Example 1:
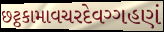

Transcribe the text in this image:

છટ્ઠકામાવચરદેવગ્ગહણં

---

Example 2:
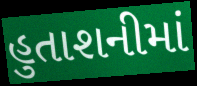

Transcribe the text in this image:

હુતાશનીમાં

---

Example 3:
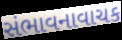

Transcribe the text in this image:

સંભાવનાવાચક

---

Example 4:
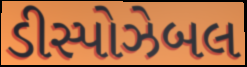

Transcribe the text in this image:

ડીસ્પોઝેબલ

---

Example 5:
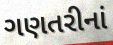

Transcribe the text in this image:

ગણતરીનાં